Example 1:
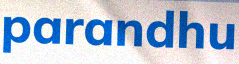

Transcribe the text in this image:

parandhu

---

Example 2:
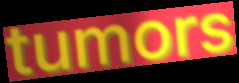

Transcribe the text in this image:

tumors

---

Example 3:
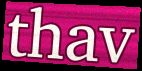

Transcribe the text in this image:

thav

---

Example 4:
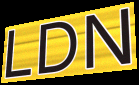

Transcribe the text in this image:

LDN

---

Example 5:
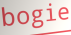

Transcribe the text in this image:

bogie